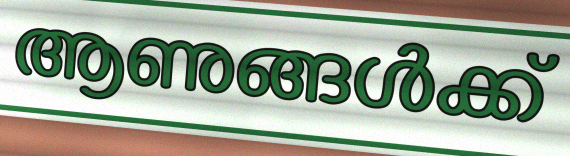
ആണുങ്ങൾക്ക്